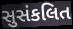
સુસંકલિત